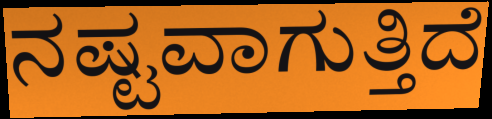
ನಷ್ಟವಾಗುತ್ತಿದೆ